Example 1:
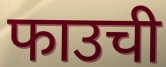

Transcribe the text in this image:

फाउची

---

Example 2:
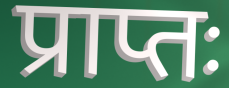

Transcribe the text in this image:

प्राप्तः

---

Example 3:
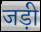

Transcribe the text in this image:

जड़ी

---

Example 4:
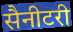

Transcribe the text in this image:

सैनीटरी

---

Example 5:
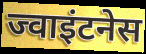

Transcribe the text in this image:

ज्वाइंटनेस